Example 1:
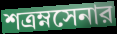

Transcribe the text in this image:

শত্রম্নসেনার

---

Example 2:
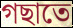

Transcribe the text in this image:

গছাতে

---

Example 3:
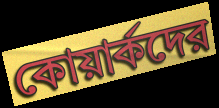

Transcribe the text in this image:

কোয়ার্কদের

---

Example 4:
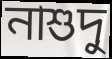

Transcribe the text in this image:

নাশুদু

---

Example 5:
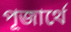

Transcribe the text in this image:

পূজার্থে